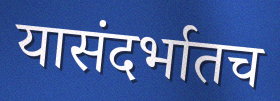
यासंदर्भातच